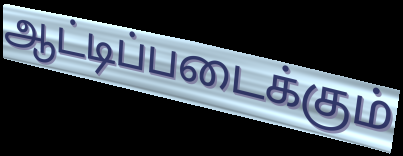
ஆட்டிப்படைக்கும்